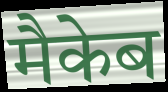
मैकेब